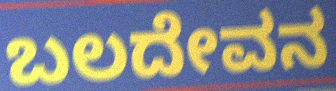
ಬಲದೇವನ